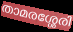
താമരശ്ശേരി